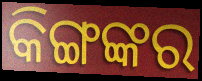
କିଙ୍ଗଙ୍କର